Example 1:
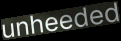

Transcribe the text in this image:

unheeded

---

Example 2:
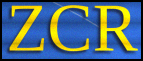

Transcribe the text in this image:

ZCR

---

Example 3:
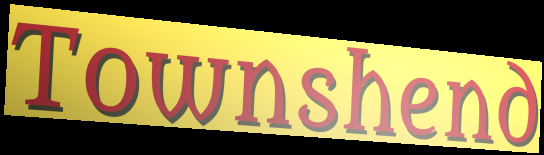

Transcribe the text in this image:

Townshend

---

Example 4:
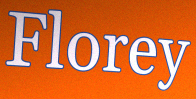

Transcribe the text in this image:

Florey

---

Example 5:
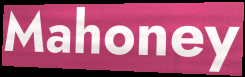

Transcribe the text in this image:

Mahoney